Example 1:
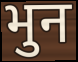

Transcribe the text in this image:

भुन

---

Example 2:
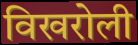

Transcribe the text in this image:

विखरोली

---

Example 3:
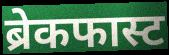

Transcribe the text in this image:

ब्रेकफास्ट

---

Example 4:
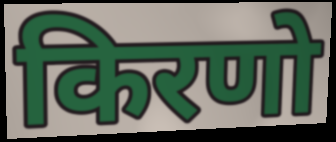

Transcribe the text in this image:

किरणो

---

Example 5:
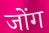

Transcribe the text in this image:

जोंग